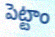
పెట్టాం